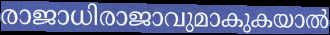
രാജാധിരാജാവുമാകുകയാൽ